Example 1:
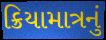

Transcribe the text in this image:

ક્રિયામાત્રનું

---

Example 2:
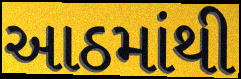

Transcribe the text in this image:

આઠમાંથી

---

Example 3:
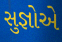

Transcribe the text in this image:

સુજ્ઞોએ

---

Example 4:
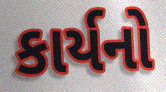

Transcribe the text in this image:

કાર્યનો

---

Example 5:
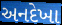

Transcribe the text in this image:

અનદેખા